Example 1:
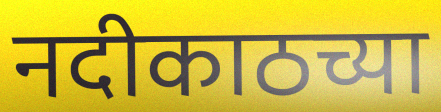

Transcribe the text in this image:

नदीकाठच्या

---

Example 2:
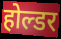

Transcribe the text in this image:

होल्डर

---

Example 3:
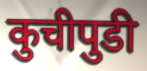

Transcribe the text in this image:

कुचीपुडी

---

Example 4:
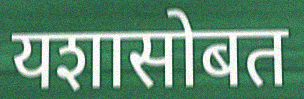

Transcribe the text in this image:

यशासोबत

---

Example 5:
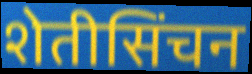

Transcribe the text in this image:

शेतीसिंचन